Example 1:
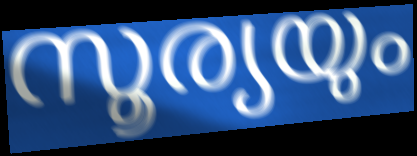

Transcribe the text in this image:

സൂര്യയും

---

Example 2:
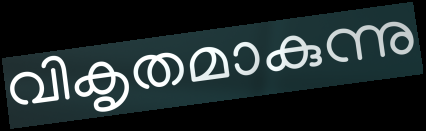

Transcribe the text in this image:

വികൃതമാകുന്നു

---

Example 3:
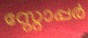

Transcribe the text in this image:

സ്റ്റോപ്പർ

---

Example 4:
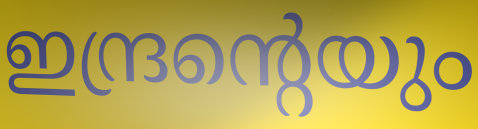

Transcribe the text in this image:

ഇന്ദ്രന്റെയും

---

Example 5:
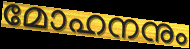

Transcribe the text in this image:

മോഹനനും